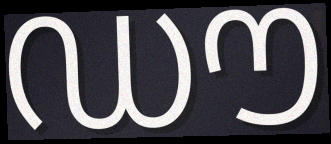
ഡൗ